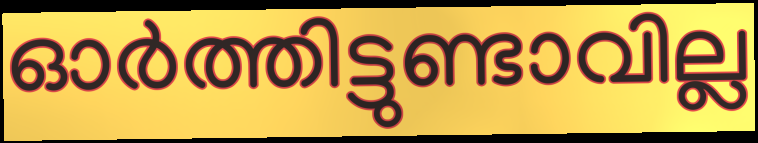
ഓർത്തിട്ടുണ്ടാവില്ല